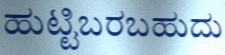
ಹುಟ್ಟಿಬರಬಹುದು